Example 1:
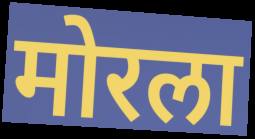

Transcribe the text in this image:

मोरला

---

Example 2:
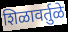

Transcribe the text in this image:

शिळावर्तुळे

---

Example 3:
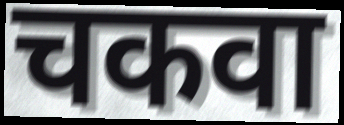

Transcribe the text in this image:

चकवा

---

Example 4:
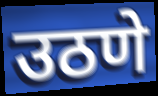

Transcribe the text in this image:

उठणे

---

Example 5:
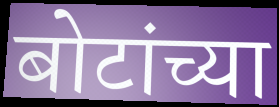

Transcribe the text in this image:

बोटांच्या